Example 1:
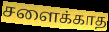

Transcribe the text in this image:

சளைக்காத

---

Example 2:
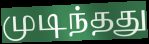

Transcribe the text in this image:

முடிந்தது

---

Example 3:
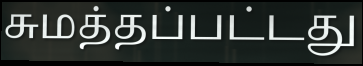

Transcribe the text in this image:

சுமத்தப்பட்டது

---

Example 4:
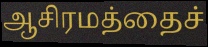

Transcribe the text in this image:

ஆசிரமத்தைச்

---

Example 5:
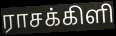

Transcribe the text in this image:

ராசக்கிளி